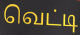
வெட்டி